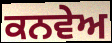
ਕਨਵੇਅ